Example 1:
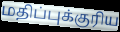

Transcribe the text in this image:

மதிப்புக்குரிய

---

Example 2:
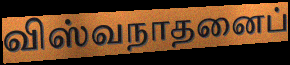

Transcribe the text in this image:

விஸ்வநாதனைப்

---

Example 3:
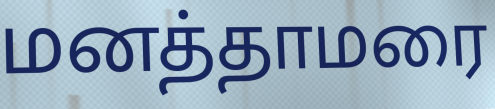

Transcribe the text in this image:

மனத்தாமரை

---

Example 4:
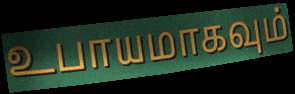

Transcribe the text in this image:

உபாயமாகவும்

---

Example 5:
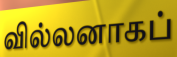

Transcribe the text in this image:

வில்லனாகப்